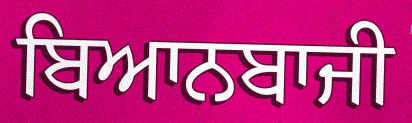
ਬਿਆਨਬਾਜੀ